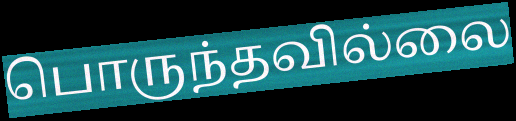
பொருந்தவில்லை